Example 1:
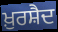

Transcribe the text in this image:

ਖ਼ੁਰਸ਼ੈਦ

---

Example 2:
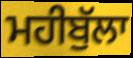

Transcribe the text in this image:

ਮਹੀਬੁੱਲਾ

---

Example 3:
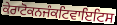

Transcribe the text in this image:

ਕੇਰਾਟੋਕਨਜੰਕਟਿਵਾਇਟਿਸ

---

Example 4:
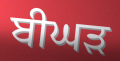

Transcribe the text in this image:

ਬੀਘੜ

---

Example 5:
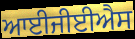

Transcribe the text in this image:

ਆਈਜੀਈਐਸ